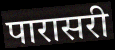
पारासरी